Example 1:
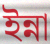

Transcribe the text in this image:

ইন্না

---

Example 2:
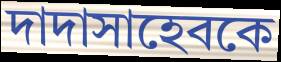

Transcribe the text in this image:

দাদাসাহেবকে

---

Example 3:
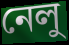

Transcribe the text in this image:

নেলু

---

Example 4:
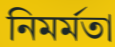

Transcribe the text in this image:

নিমর্মতা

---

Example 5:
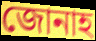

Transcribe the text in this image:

জোনাহ